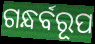
ଗନ୍ଧର୍ବରୂପ